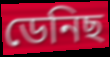
ডেনিছ